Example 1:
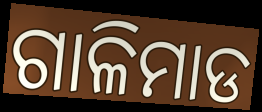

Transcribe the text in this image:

ଗାଳିମାଡ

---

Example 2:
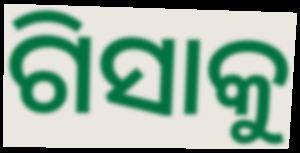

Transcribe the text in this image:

ଗିସାକୁ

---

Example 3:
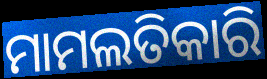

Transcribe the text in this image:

ମାମଲତିକାରି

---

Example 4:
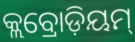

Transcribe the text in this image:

କ୍ଲବ୍ରୋଡ଼ିୟମ୍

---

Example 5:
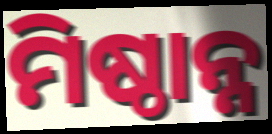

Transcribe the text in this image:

ମିଷ୍ଠାନ୍ନ